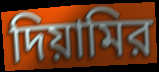
দিয়ামির